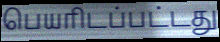
பெயரிடப்பட்டது